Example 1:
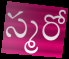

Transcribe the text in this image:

స్మరో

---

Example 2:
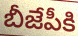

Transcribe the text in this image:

బీజేపీకి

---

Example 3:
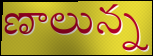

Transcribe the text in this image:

ణాలున్న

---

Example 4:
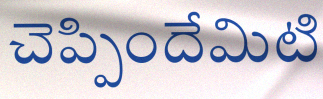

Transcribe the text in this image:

చెప్పిందేమిటి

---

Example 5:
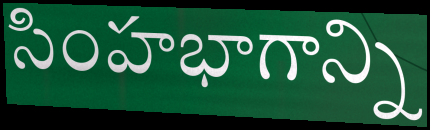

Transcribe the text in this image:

సింహభాగాన్ని